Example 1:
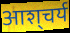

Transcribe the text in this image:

आश्चर्य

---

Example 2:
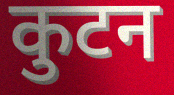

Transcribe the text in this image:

कुटन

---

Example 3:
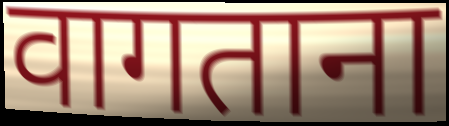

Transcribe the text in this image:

वागताना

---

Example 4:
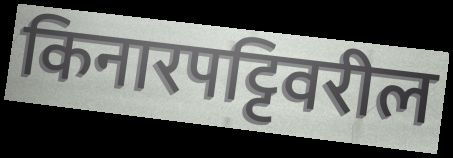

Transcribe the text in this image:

किनारपट्टिवरील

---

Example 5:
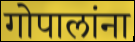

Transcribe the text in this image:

गोपालांना